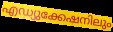
എഡ്യുക്കേഷനിലും